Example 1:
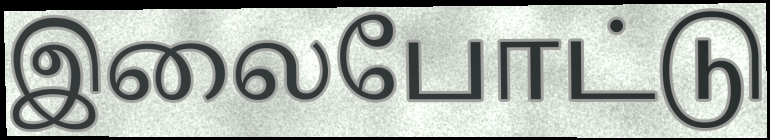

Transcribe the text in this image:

இலைபோட்டு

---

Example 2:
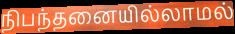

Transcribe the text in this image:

நிபந்தனையில்லாமல்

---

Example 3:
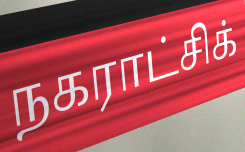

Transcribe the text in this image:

நகராட்சிக்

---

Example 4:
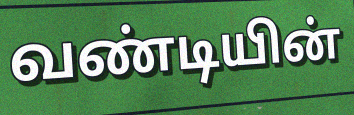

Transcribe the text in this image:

வண்டியின்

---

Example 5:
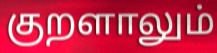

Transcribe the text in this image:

குறளாலும்